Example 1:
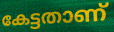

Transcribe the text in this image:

കേട്ടതാണ്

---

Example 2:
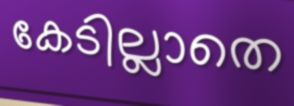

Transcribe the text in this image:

കേടില്ലാതെ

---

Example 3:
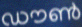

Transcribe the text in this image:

ഡൗൺ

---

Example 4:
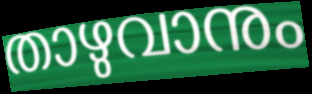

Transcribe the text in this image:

താഴുവാനും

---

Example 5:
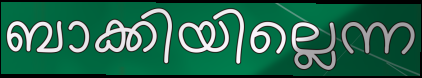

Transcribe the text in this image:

ബാക്കിയില്ലെന്ന